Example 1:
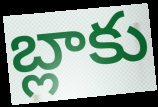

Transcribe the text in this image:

బ్లాకు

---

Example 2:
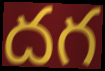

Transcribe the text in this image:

దగ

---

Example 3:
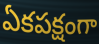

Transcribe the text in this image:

ఏకపక్షంగా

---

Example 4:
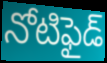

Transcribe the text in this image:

నోటిఫైడ్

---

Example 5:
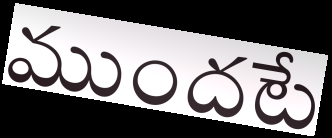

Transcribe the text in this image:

ముందటే